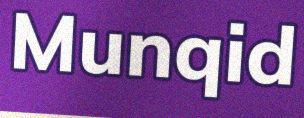
Munqid